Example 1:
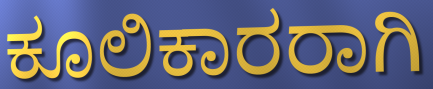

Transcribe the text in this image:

ಕೂಲಿಕಾರರಾಗಿ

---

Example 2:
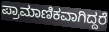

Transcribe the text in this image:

ಪ್ರಾಮಾಣಿಕವಾಗಿದ್ದರೆ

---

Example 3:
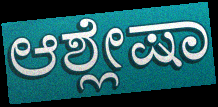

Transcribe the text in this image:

ಆಶ್ಲೇಷಾ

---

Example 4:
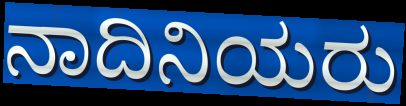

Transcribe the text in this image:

ನಾದಿನಿಯರು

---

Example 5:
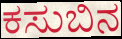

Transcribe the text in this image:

ಕಸುಬಿನ